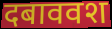
दबाववश